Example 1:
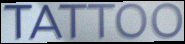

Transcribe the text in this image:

TATTOO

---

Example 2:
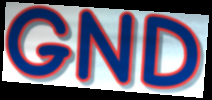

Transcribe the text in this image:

GND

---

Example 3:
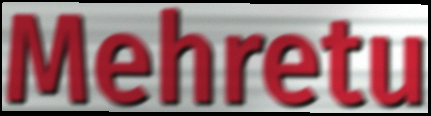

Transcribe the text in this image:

Mehretu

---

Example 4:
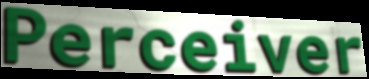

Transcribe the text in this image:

Perceiver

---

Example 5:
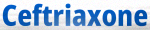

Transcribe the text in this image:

Ceftriaxone